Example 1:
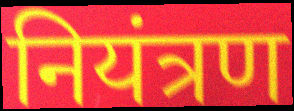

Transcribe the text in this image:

नियंत्रण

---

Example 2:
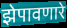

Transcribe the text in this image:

झेपावणारे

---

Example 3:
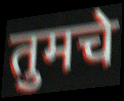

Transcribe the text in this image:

तुमचे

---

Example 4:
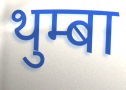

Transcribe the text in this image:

थुम्बा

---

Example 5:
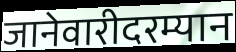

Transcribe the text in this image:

जानेवारीदरम्यान